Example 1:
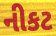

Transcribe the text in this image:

નીકટ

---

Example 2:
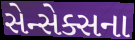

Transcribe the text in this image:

સેન્સેક્સના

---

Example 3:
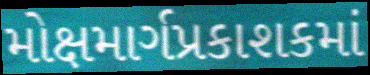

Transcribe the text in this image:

મોક્ષમાર્ગપ્રકાશકમાં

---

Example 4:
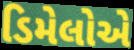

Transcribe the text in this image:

ડિમેલોએ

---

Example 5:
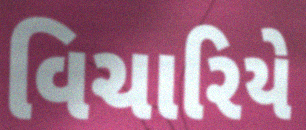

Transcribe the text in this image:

વિચારિયે